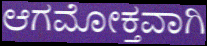
ಆಗಮೋಕ್ತವಾಗಿ